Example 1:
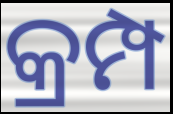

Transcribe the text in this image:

କ୍ରମ୍ପ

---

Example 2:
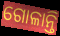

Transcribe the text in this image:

ଗୋଳାନ୍ତି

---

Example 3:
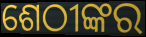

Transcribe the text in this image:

ଶେଠୀଙ୍କର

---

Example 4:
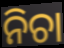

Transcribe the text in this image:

ନିଚା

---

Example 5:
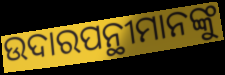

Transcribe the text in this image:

ଉଦାରପନ୍ଥୀମାନଙ୍କୁ